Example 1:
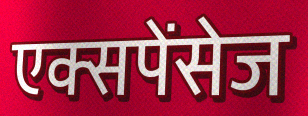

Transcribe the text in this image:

एक्सपेंसेज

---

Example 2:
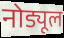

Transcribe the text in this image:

नोड्यूल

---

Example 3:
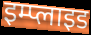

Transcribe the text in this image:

इम्प्लाइड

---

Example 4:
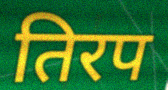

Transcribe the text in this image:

तिरप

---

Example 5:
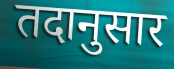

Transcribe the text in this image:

तदानुसार